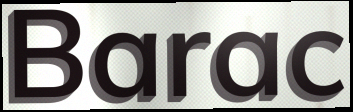
Barac